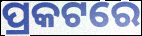
ପ୍ରକଟରେ